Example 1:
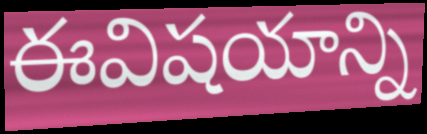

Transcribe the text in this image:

ఈవిషయాన్ని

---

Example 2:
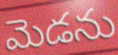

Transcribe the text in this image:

మెడను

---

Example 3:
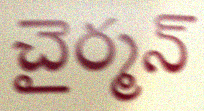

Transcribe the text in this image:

చైర్మన్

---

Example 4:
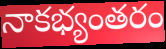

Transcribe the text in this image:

నాకభ్యంతరం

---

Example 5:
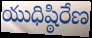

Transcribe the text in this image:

యుధిష్ఠిరేణ